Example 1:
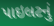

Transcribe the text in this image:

પાઇલટનું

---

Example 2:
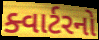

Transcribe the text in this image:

ક્વાર્ટરનો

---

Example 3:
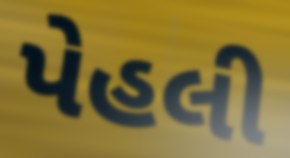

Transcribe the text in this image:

પેહલી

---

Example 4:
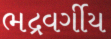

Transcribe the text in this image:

ભદ્રવર્ગીય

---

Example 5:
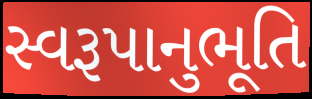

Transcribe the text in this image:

સ્વરૂપાનુભૂતિ